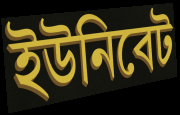
ইউনিবেট